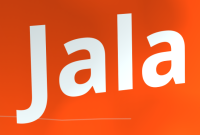
Jala